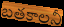
బతకాలనీ